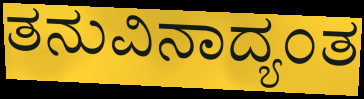
ತನುವಿನಾದ್ಯಂತ